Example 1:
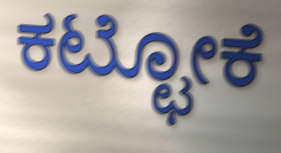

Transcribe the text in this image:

ಕಟ್ಟೋಕೆ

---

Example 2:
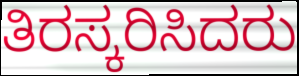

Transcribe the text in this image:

ತಿರಸ್ಕರಿಸಿದರು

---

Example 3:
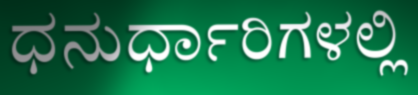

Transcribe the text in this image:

ಧನುರ್ಧಾರಿಗಳಲ್ಲಿ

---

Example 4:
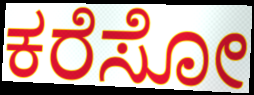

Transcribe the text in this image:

ಕರೆಸೋ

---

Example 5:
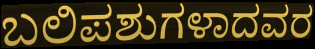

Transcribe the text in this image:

ಬಲಿಪಶುಗಳಾದವರ